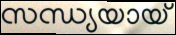
സന്ധ്യയായ്